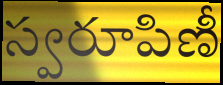
స్వరూపిణీ